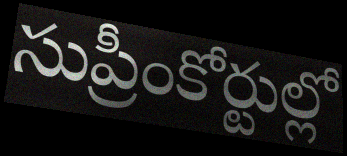
సుప్రీంకోర్టుల్లో